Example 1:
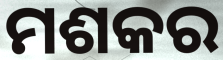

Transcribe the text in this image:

ମଶକର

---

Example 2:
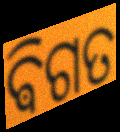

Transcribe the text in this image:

ଵିଗତ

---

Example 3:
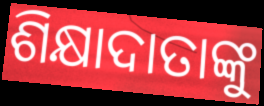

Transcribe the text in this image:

ଶିକ୍ଷାଦାତାଙ୍କୁ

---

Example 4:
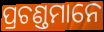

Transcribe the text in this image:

ପ୍ରଚଣ୍ଡମାନେ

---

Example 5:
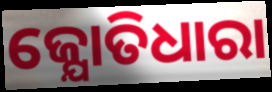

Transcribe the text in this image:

ଜ୍ଯୋତିଧାରା